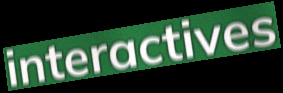
interactives